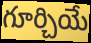
గూర్చియే